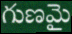
గుణమై